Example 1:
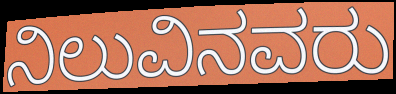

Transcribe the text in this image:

ನಿಲುವಿನವರು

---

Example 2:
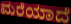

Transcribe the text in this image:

ಮರೆಯಾದೆ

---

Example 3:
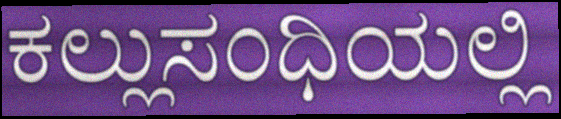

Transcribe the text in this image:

ಕಲ್ಲುಸಂಧಿಯಲ್ಲಿ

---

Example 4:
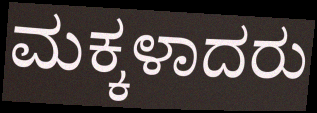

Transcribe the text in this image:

ಮಕ್ಕಳಾದರು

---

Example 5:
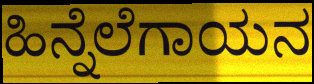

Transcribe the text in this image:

ಹಿನ್ನೆಲೆಗಾಯನ